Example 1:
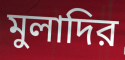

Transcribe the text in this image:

মুলাদির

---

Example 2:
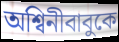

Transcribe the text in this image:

অশ্বিনীবাবুকে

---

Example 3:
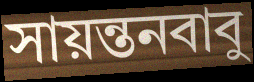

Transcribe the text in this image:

সায়ন্তনবাবু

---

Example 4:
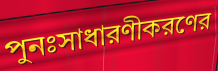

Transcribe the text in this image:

পুনঃসাধারণীকরণের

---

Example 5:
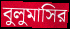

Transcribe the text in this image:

বুলুমাসির